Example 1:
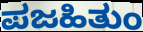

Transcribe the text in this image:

ಪಜಹಿತುಂ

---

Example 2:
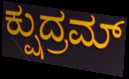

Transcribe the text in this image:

ಕ್ಷುದ್ರಮ್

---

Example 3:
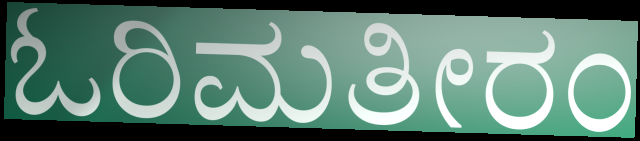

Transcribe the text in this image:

ಓರಿಮತೀರಂ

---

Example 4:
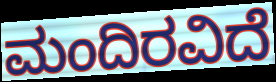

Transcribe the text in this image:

ಮಂದಿರವಿದೆ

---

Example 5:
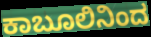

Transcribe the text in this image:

ಕಾಬೂಲಿನಿಂದ